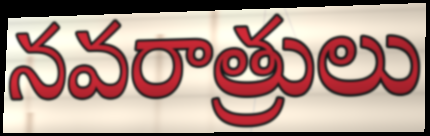
నవరాత్రులు